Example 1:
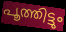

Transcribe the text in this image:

പൂത്തിട്ടും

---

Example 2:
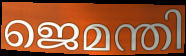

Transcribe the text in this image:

ജെമന്തി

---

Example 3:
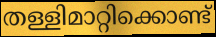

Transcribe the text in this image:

തള്ളിമാറ്റിക്കൊണ്ട്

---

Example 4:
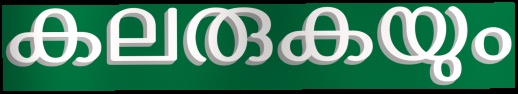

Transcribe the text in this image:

കലരുകയും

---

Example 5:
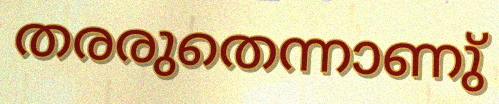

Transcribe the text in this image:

തരരുതെന്നാണു്